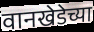
वानखेडेच्या